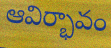
ఆవిర్భావం